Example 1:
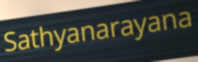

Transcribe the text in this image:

Sathyanarayana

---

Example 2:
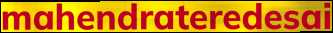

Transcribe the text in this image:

mahendrateredesai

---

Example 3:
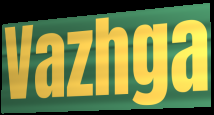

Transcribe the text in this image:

Vazhga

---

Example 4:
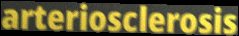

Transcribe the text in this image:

arteriosclerosis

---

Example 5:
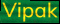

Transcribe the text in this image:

Vipak